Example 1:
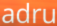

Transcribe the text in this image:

adru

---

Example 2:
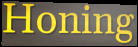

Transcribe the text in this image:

Honing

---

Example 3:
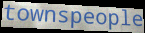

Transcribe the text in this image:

townspeople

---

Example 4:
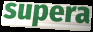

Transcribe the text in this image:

supera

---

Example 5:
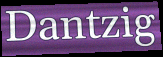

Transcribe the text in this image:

Dantzig